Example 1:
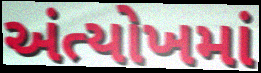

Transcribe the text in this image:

અંત્યોખમાં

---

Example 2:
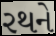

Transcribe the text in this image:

રથને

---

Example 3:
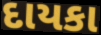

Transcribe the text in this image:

દાયકા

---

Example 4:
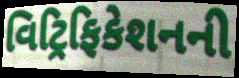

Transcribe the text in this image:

વિટ્રિફિકેશનની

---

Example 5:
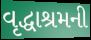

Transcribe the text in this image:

વૃદ્ધાશ્રમની